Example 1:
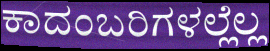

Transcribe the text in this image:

ಕಾದಂಬರಿಗಳಲ್ಲೆಲ್ಲ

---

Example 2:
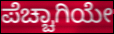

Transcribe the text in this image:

ಪೆಚ್ಚಾಗಿಯೇ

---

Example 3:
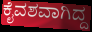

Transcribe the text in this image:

ಕೈವಶವಾಗಿದ್ದ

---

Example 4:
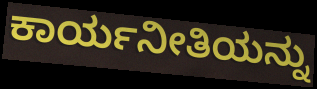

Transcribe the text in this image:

ಕಾರ್ಯನೀತಿಯನ್ನು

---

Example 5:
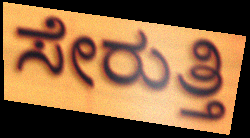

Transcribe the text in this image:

ಸೇರುತ್ತಿ